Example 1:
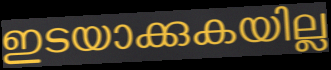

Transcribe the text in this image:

ഇടയാക്കുകയില്ല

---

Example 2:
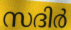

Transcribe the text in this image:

സദിർ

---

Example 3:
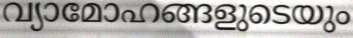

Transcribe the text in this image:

വ്യാമോഹങ്ങളുടെയും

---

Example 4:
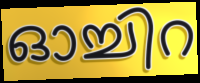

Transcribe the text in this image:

ഓച്ചിറ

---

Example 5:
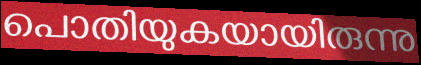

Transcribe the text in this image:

പൊതിയുകയായിരുന്നു